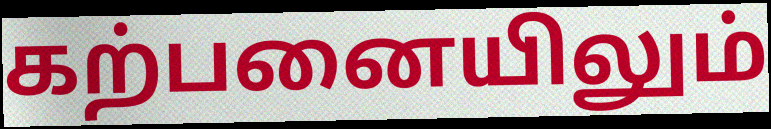
கற்பனையிலும்